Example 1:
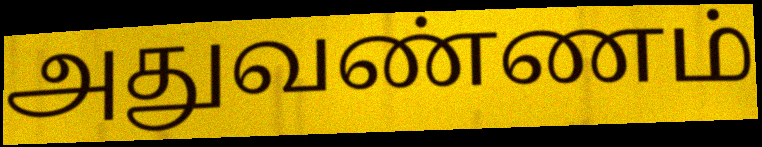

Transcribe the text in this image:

அதுவண்ணம்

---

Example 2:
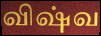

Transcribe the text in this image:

விஷ்வ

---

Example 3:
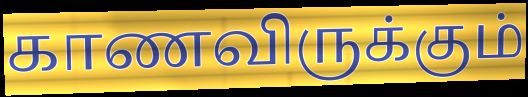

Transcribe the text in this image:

காணவிருக்கும்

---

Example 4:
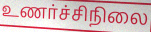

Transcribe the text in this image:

உணர்ச்சிநிலை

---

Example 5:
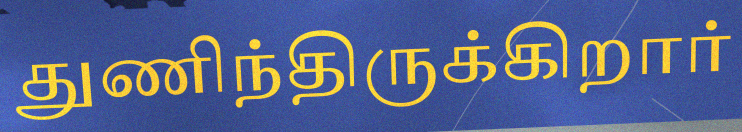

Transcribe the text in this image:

துணிந்திருக்கிறார்